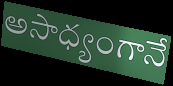
అసాధ్యంగానే